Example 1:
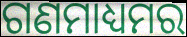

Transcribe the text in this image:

ଗଣମାଧ୍ୟମର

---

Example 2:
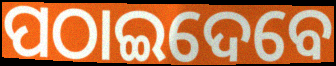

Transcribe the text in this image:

ପଠାଇଦେବେ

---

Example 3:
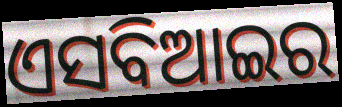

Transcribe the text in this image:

ଏସବିଆଇର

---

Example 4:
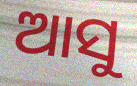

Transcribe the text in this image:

ଆସୁ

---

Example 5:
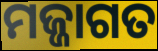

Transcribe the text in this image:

ମଜ୍ଜାଗତ